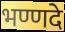
भण्णदे